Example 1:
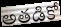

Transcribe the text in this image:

అతడికో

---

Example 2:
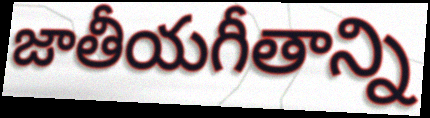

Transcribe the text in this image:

జాతీయగీతాన్ని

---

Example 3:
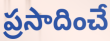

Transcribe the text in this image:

ప్రసాదించే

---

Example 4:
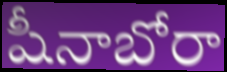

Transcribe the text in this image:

షీనాబోరా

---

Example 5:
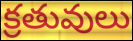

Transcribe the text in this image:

క్రతువులు